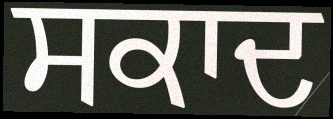
ਸਕਾਦ